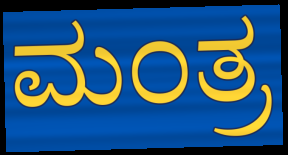
ಮಂತ್ರ